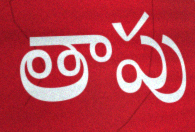
తాపు